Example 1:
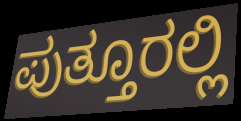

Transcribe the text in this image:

ಪುತ್ತೂರಲ್ಲಿ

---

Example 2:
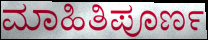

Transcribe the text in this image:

ಮಾಹಿತಿಪೂರ್ಣ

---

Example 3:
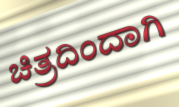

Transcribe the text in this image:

ಚಿತ್ರದಿಂದಾಗಿ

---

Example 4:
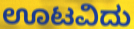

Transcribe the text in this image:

ಊಟವಿದು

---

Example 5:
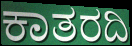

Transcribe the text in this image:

ಕಾತರದಿ